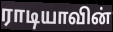
ராடியாவின்